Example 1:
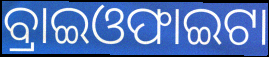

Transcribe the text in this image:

ବ୍ରାଇଓଫାଇଟା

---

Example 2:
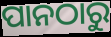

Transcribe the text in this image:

ପାନଠାରୁ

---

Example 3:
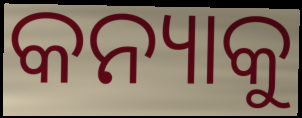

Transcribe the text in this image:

କନ୍ୟାକୁ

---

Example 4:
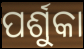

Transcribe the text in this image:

ପର୍ଶୁକା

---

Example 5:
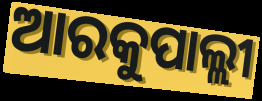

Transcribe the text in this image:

ଆରକୁପାଲ୍ଲୀ